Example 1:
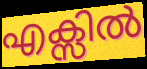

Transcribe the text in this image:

എക്സിൽ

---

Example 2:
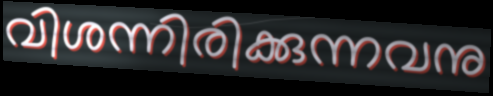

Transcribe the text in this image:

വിശന്നിരിക്കുന്നവനു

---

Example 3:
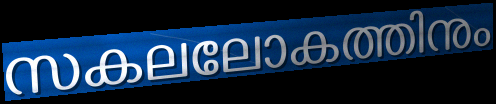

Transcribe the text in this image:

സകലലോകത്തിനും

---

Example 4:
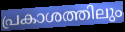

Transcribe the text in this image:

പ്രകാശത്തിലും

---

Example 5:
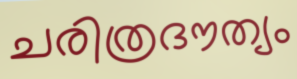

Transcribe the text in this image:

ചരിത്രദൗത്യം